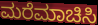
ಮರೆಮಾಚಿಸಿ